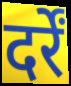
दर्रें